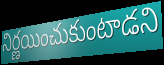
నిర్ణయించుకుంటాడని